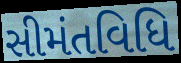
સીમંતવિધિ